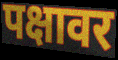
पक्षावर